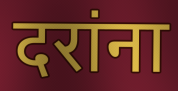
दरांना